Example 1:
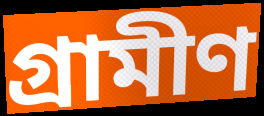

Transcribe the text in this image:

গ্রামীণ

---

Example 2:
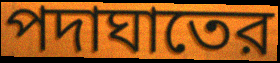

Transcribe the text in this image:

পদাঘাতের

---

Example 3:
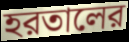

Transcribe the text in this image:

হরতালের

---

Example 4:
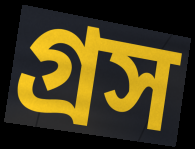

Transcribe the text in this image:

গ্রস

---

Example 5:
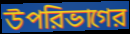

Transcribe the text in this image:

উপরিভাগের